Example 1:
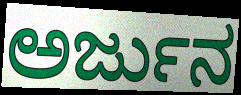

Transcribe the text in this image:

ಅರ್ಜುನ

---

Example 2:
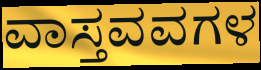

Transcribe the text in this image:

ವಾಸ್ತವವಗಳ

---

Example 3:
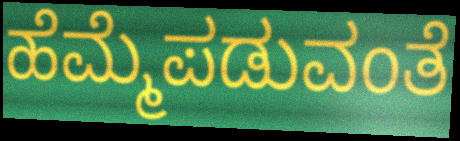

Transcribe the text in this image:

ಹೆಮ್ಮೆಪಡುವಂತೆ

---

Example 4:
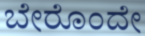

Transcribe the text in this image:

ಬೇರೊಂದೇ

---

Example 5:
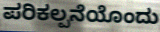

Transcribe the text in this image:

ಪರಿಕಲ್ಪನೆಯೊಂದು